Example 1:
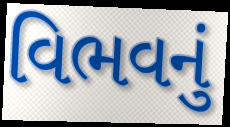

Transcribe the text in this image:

વિભવનું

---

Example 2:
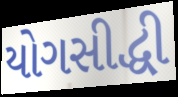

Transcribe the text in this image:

યોગસીદ્ધી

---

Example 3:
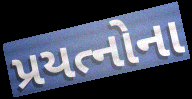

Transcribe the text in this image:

પ્રયત્નોના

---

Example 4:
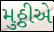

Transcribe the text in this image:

મુઠ્ઠીએ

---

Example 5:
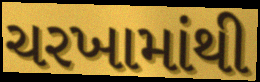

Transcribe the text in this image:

ચરખામાંથી